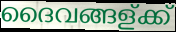
ദൈവങ്ങള്ക്ക്